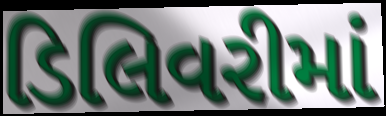
ડિલિવરીમાં